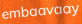
embaavaay